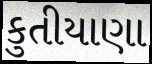
કુતીયાણા